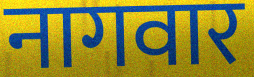
नागवार